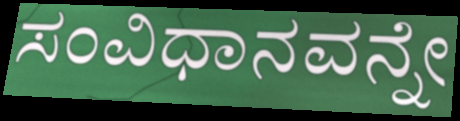
ಸಂವಿಧಾನವನ್ನೇ